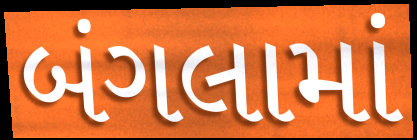
બંગલામાં